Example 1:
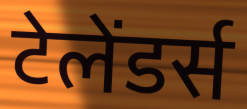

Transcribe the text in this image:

टेलेंडर्स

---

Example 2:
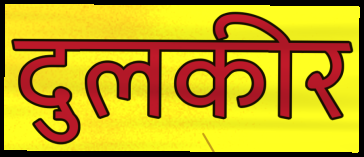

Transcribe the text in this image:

दुलकीर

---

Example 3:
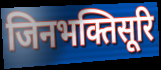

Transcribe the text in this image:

जिनभक्तिसूरि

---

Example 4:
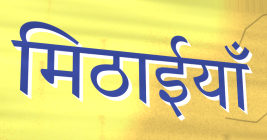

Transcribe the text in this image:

मिठाईयाँ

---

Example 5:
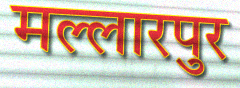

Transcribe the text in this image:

मल्लारपुर